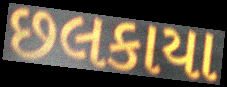
છલકાયા